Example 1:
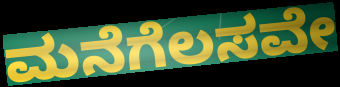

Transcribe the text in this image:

ಮನೆಗೆಲಸವೇ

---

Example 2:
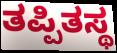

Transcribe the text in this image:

ತಪ್ಪಿತಸ್ಥ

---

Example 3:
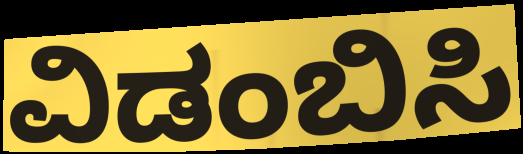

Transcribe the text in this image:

ವಿಡಂಬಿಸಿ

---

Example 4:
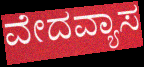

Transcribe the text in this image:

ವೇದವ್ಯಾಸ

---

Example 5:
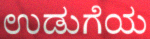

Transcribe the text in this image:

ಉಡುಗೆಯ